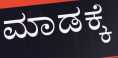
ಮಾಡಕ್ಕೆ